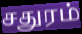
சதுரம்